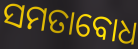
ସମତାବୋଧ